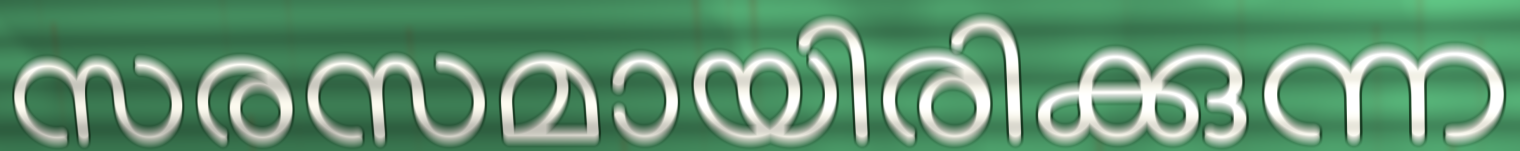
സരസമായിരിക്കുന്ന